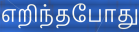
எறிந்தபோது